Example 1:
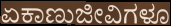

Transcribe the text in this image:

ಏಕಾಣುಜೀವಿಗಳೂ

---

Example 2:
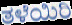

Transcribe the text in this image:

ತಳೆಯಿರಿ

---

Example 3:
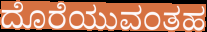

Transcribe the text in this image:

ದೊರೆಯುವಂತಹ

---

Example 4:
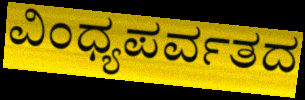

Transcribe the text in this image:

ವಿಂಧ್ಯಪರ್ವತದ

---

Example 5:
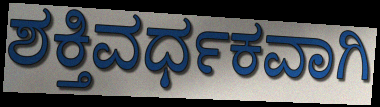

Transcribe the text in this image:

ಶಕ್ತಿವರ್ಧಕವಾಗಿ